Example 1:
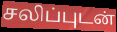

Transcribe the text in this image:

சலிப்புடன்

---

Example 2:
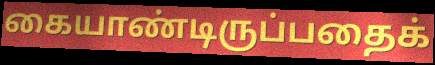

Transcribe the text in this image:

கையாண்டிருப்பதைக்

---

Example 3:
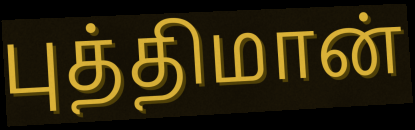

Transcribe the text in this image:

புத்திமான்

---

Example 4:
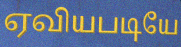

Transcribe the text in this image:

ஏவியபடியே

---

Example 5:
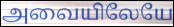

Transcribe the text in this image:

அவையிலேயே